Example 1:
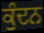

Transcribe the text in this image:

ਕੁੰਦਨ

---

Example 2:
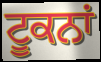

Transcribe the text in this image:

ਟੂਕਨਾਂ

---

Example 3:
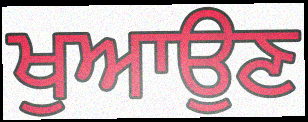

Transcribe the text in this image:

ਖੁਆਉਣ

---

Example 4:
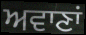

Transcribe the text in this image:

ਅਵਾਣਾਂ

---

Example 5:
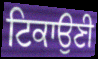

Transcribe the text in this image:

ਟਿਕਾਉਣੀ